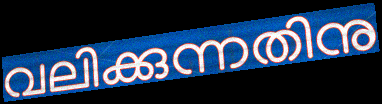
വലിക്കുന്നതിനു